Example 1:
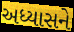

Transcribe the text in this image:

અધ્યાસને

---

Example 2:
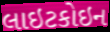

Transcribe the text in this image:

લાઇટકોઇન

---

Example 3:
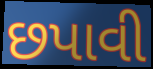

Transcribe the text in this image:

છપાવી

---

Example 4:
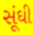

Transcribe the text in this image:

સૂંઘી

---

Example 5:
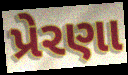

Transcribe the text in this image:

પ્રેરણા